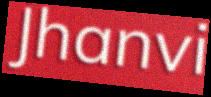
Jhanvi